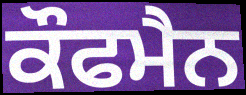
ਕੌਫਮੈਨ